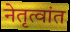
नेतृत्वांत